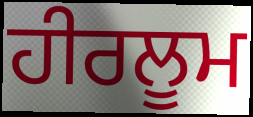
ਹੀਰਲੂਮ